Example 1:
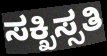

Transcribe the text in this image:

ಸಕ್ಖಿಸ್ಸತಿ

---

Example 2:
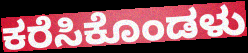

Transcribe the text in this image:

ಕರೆಸಿಕೊಂಡಳು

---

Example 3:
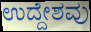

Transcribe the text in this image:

ಉದ್ದೇಶವು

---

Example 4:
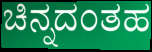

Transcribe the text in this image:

ಚಿನ್ನದಂತಹ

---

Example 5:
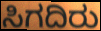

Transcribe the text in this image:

ಸಿಗದಿರು